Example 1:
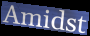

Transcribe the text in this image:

Amidst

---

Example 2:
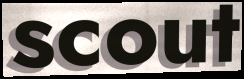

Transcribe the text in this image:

scout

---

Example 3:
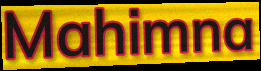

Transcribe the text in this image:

Mahimna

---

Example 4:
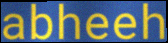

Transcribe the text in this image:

abheeh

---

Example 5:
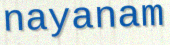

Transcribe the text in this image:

nayanam